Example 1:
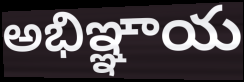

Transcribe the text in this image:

అభిఞ్ఞాయ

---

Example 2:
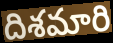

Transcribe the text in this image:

దిశమారి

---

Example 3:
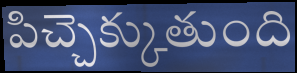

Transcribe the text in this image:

పిచ్చెక్కుతుంది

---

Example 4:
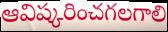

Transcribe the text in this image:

ఆవిష్కరించగలగాలి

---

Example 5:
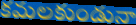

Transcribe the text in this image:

కమలకుండునా